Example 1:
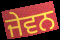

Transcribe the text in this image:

ਜੇਵਨ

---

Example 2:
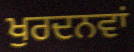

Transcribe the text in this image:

ਖੁਰਦਨਵਾਂ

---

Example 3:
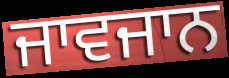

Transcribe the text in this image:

ਜਾਵਜਾਨ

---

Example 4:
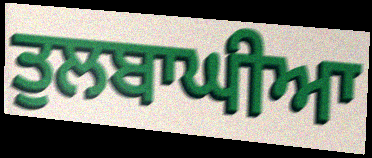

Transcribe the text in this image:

ਤੁਲਬਾਘੀਆ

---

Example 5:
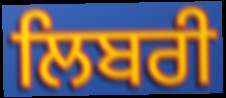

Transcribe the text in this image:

ਲਿਬਰੀ